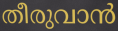
തീരുവാൻ